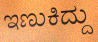
ಇಣುಕಿದ್ದು